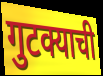
गुटक्याची